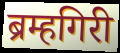
ब्रम्हगिरी